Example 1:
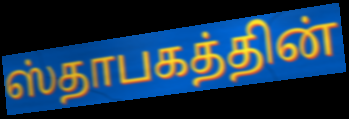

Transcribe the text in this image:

ஸ்தாபகத்தின்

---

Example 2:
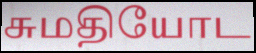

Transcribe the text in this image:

சுமதியோட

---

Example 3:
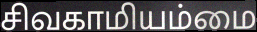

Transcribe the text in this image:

சிவகாமியம்மை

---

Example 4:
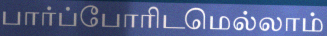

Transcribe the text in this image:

பார்ப்போரிடமெல்லாம்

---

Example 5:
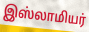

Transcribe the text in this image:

இஸ்லாமியர்